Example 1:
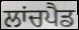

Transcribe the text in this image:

ਲਾਂਚਪੈਡ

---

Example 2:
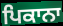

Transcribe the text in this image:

ਪਿਕਾਨਾ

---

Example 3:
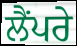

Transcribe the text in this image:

ਲੈਂਪਰੇ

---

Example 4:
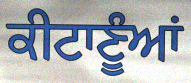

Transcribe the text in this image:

ਕੀਟਾਣੂੰਆਂ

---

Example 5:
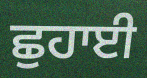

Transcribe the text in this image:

ਛੁਹਾਈ